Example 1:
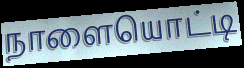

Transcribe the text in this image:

நாளையொட்டி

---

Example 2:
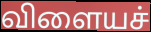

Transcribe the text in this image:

விளையச்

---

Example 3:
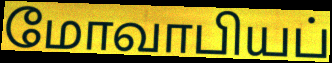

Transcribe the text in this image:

மோவாபியப்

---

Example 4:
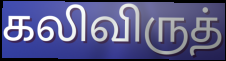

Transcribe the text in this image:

கலிவிருத்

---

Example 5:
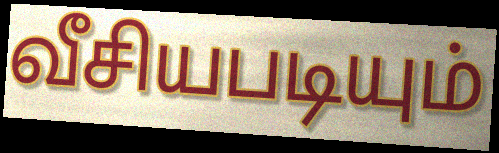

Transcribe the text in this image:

வீசியபடியும்